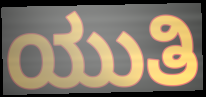
ಯುತಿ